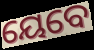
ୟେବେ